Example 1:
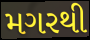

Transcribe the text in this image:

મગરથી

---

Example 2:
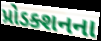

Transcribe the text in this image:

પ્રોડક્શનના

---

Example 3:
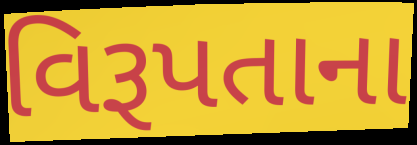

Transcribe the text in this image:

વિરૂપતાના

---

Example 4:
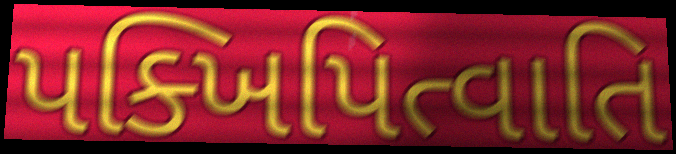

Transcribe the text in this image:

પક્ખિપિત્વાતિ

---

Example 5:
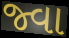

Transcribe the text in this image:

જ્વા